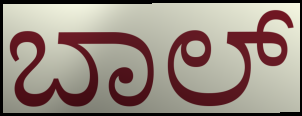
ಬಾಲ್